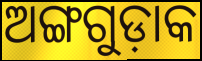
ଅଙ୍ଗଗୁଡ଼ାକ